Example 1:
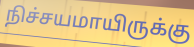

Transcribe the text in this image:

நிச்சயமாயிருக்கு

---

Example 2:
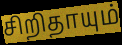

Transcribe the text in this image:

சிறிதாயும்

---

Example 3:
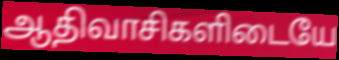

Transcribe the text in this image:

ஆதிவாசிகளிடையே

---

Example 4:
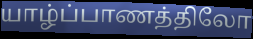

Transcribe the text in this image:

யாழ்ப்பாணத்திலோ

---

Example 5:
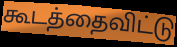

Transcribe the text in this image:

கூடத்தைவிட்டு